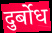
दुर्बोध